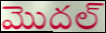
మొదల్